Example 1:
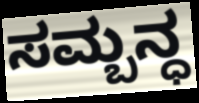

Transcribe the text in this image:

ಸಮ್ಬನ್ಧ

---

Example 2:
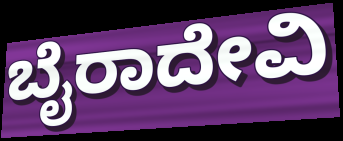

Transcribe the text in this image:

ಬೈರಾದೇವಿ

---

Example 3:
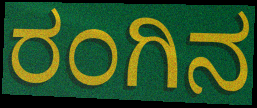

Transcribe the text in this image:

ರಂಗಿನ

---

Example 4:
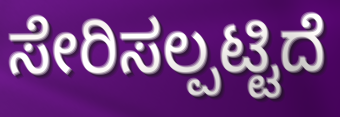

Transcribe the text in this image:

ಸೇರಿಸಲ್ಪಟ್ಟಿದೆ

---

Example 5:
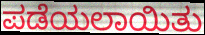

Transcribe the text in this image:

ಪಡೆಯಲಾಯಿತು